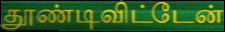
தூண்டிவிட்டேன்